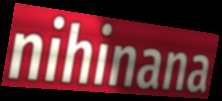
nihinana